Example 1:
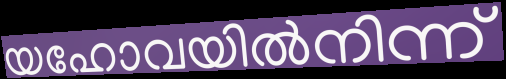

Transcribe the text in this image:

യഹോവയിൽനിന്ന്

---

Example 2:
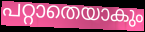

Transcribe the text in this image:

പറ്റാതെയാകും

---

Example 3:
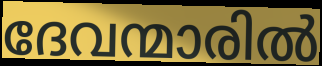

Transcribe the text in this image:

ദേവന്മാരിൽ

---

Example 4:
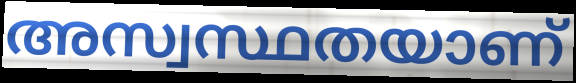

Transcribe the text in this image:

അസ്വസ്ഥതയാണ്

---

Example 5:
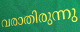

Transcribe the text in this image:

വരാതിരുന്നു